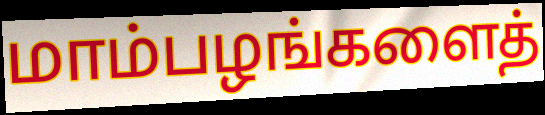
மாம்பழங்களைத்